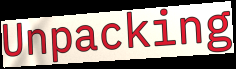
Unpacking